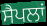
ਸੈਪਲਾਂ